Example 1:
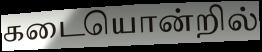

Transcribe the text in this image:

கடையொன்றில்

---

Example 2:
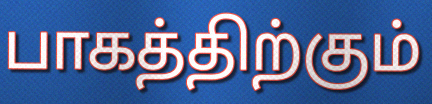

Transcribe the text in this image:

பாகத்திற்கும்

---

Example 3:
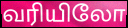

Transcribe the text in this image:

வரியிலோ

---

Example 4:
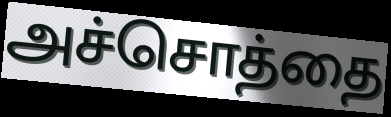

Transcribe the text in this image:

அச்சொத்தை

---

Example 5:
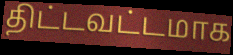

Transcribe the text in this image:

திட்டவட்டமாக